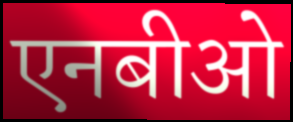
एनबीओ